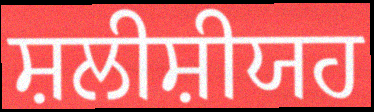
ਸ਼ਲੀਸ਼ੀਯਹ